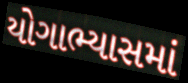
યોગાભ્યાસમાં